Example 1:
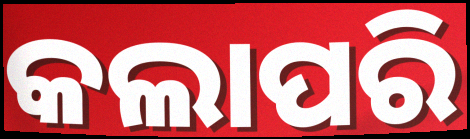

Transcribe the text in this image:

କଲାପରି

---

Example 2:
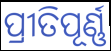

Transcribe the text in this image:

ପ୍ରୀତିପୂର୍ଣ୍ଣ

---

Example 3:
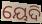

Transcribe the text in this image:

ୟେଦି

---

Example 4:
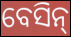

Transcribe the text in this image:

ବେସିନ୍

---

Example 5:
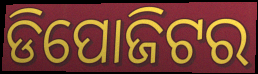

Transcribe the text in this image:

ଡିପୋଜିଟର